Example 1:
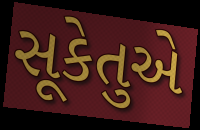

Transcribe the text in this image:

સૂકેતુએ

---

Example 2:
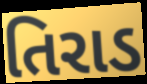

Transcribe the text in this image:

તિરાડ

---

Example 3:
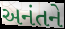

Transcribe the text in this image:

અનંતને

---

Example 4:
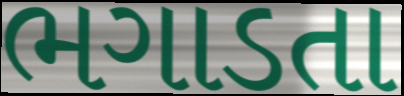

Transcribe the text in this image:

ભગાડતા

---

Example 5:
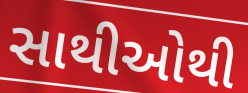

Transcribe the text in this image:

સાથીઓથી